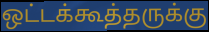
ஒட்டக்கூத்தருக்கு